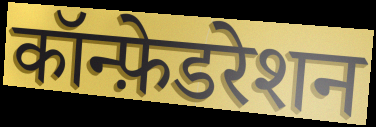
कॉन्फ़ेडरेशन